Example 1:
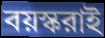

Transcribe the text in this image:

বয়স্করাই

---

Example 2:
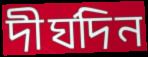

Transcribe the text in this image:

দীর্ঘদিন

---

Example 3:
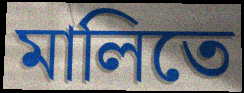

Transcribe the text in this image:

মালিতে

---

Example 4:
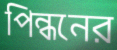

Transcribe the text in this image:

পিন্ধনের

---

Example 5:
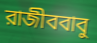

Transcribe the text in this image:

রাজীববাবু